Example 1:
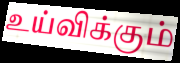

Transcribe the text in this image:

உய்விக்கும்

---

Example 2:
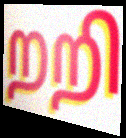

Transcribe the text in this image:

றறி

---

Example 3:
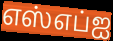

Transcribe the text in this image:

எஸ்எப்ஐ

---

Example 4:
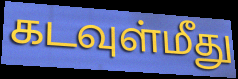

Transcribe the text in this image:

கடவுள்மீது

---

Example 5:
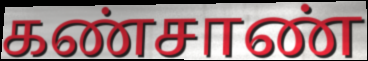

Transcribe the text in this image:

கண்சாண்